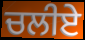
ਚਲੀਏ